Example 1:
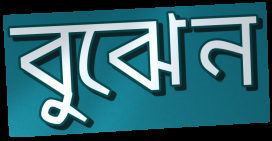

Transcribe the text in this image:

বুঝেন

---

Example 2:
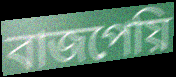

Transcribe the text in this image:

বাজপেয়ি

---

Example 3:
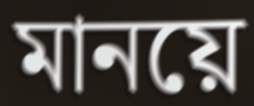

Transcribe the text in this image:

মানয়ে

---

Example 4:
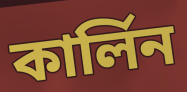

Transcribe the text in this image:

কার্লিন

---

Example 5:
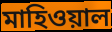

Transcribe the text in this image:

মাহিওয়াল